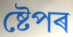
ষ্টেপৰ